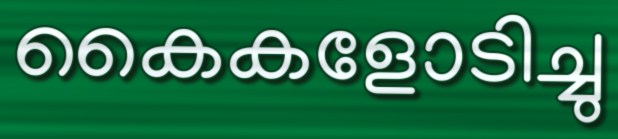
കൈകളോടിച്ചു